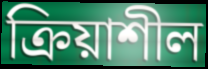
ক্ৰিয়াশীল